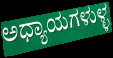
ಅಧ್ಯಾಯಗಳುಳ್ಳ